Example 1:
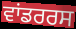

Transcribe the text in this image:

ਵਾਂਡਰਰਸ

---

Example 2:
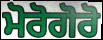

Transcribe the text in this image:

ਮੋਰੋਗੋਰੋ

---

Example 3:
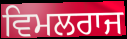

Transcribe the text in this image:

ਵਿਮਲਰਾਜ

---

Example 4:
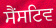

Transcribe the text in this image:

ਸੈਂਸਟਿਵ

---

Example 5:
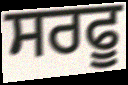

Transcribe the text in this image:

ਸਰਫੂ